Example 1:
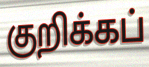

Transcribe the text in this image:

குறிக்கப்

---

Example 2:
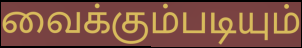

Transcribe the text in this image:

வைக்கும்படியும்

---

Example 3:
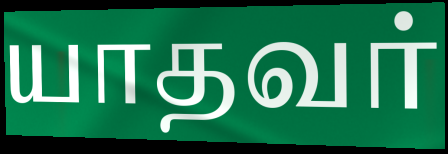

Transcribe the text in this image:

யாதவர்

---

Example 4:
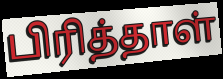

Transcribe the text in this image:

பிரித்தாள்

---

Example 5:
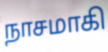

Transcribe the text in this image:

நாசமாகி